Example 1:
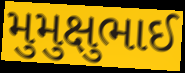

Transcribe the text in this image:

મુમુક્ષુભાઈ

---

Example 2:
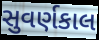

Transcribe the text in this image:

સુવર્ણકાલ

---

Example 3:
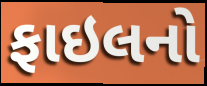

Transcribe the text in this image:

ફાઇલનો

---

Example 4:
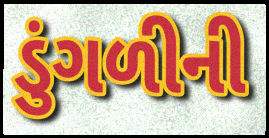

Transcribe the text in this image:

ડુંગળીની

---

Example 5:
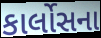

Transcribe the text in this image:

કાર્લોસના